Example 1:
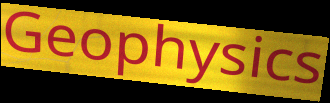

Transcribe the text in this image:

Geophysics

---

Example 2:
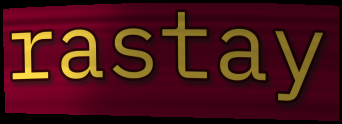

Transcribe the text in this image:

rastay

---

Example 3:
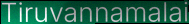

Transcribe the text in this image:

Tiruvannamalai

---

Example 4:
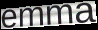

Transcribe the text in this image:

emma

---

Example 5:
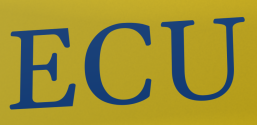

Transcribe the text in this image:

ECU